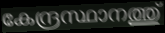
കേന്ദ്രസ്ഥാനത്തു്